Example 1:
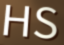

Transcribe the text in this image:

HS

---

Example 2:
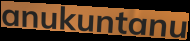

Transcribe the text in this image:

anukuntanu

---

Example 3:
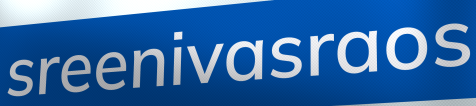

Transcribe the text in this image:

sreenivasraos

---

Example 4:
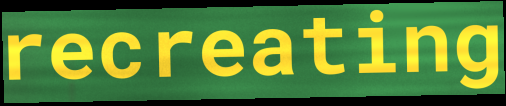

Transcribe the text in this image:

recreating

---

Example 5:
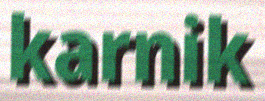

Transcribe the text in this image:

karnik